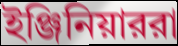
ইঞ্জিনিয়াররা